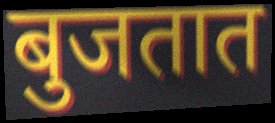
बुजतात